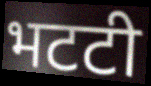
भटटी